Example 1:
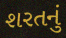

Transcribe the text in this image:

શરતનું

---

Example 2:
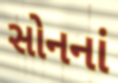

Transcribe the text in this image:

સોનનાં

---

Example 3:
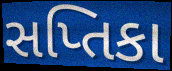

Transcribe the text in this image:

સપ્તિકા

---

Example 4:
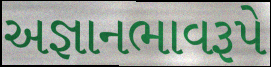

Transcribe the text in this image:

અજ્ઞાનભાવરૂપે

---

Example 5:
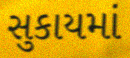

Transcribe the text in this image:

સુકાયમાં